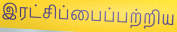
இரட்சிப்பைப்பற்றிய